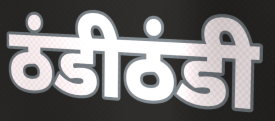
ठंडीठंडी